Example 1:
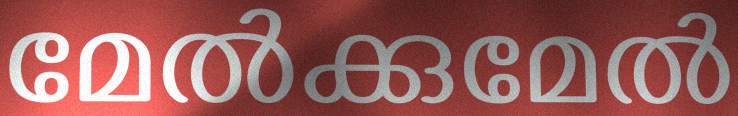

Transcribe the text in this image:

മേൽക്കുമേൽ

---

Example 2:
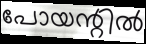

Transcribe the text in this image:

പോയന്റിൽ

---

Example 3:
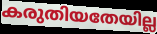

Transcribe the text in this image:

കരുതിയതേയില്ല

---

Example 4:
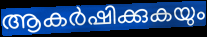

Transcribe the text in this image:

ആകർഷിക്കുകയും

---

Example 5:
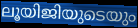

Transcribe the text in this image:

ലൂയിജിയുടെയും